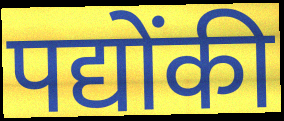
पद्योंकी